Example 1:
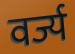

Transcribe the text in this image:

वर्ज्य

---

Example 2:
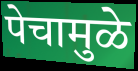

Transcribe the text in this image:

पेचामुळे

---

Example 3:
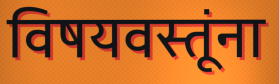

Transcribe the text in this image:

विषयवस्तूंना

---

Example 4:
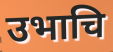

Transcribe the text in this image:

उभाचि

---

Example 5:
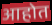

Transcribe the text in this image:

आहोत